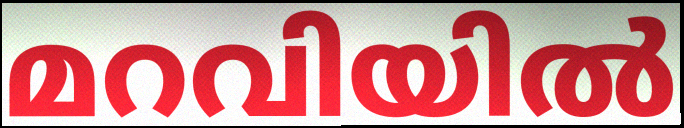
മറവിയിൽ